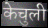
केचुली